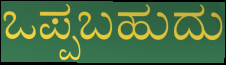
ಒಪ್ಪಬಹುದು